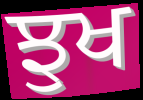
ਝੁਖ